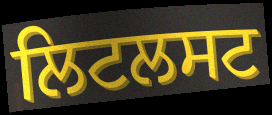
ਲਿਟਲਸਟ